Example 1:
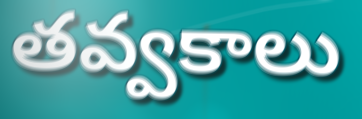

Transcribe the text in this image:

తవ్వకాలు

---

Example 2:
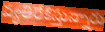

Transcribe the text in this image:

వ్యతిరేకిస్తున్నారు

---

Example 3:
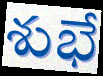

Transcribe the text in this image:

శుభే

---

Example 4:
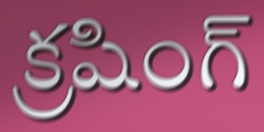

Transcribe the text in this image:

క్రషింగ్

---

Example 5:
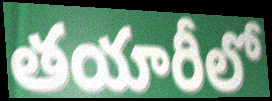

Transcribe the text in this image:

తయారీలో